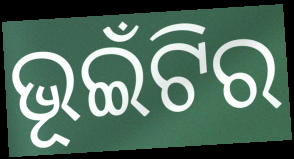
ଭୂଇଁଟିର